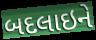
બદલાઇને